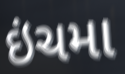
ઇંચમા